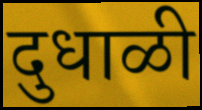
दुधाळी